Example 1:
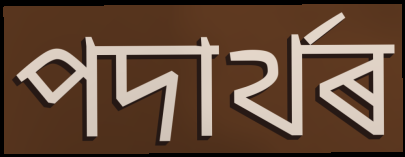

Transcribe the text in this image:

পদাৰ্থৰ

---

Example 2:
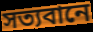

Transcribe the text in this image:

সত্যবানে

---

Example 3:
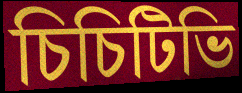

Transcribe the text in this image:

চিচিটিভি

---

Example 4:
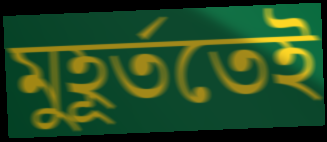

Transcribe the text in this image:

মুহূৰ্ততেই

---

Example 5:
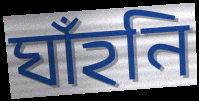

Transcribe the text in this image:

ঘাঁহনি